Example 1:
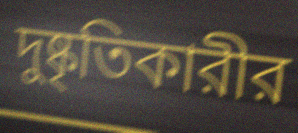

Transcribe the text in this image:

দুষ্কৃতিকারীর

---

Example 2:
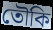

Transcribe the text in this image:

তৌকি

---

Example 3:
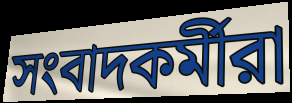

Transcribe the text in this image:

সংবাদকর্মীরা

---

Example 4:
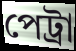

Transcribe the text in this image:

পেট্রা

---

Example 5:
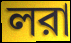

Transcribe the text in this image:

লরা